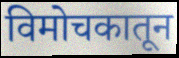
विमोचकातून